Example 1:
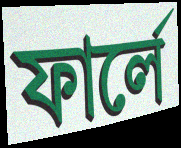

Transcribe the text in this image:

ফার্লে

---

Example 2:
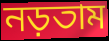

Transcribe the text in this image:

নড়তাম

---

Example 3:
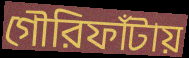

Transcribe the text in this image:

গৌরিফাঁটায়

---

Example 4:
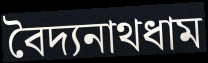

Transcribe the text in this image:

বৈদ্যনাথধাম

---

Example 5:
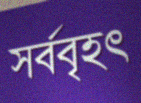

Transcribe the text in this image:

সর্ববৃহৎ